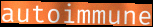
autoimmune